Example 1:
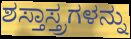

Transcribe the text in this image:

ಶಸ್ತಾಸ್ತ್ರಗಳನ್ನು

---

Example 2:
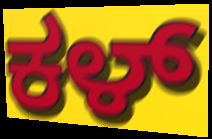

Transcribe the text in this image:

ಕಳ್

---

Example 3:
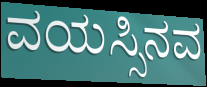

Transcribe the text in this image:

ವಯಸ್ಸಿನವ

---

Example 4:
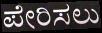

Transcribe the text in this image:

ಪೇರಿಸಲು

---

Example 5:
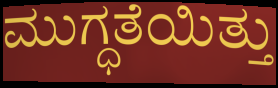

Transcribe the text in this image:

ಮುಗ್ಧತೆಯಿತ್ತು